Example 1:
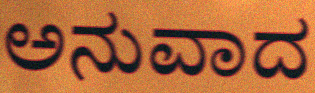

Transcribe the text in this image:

ಅನುವಾದ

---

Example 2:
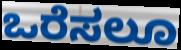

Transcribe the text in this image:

ಒರೆಸಲೂ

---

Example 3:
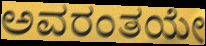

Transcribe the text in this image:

ಅವರಂತಯೇ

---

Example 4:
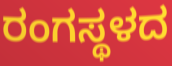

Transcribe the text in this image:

ರಂಗಸ್ಥಳದ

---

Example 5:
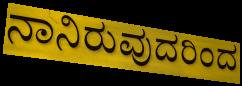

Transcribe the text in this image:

ನಾನಿರುವುದರಿಂದ